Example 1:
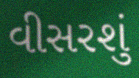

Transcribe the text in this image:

વીસરશું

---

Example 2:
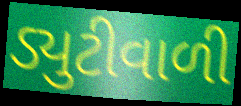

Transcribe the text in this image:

ડ્યુટીવાળી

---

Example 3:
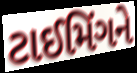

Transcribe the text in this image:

ટાઈમિંગને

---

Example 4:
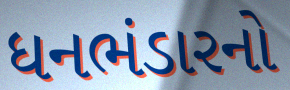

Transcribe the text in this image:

ધનભંડારનો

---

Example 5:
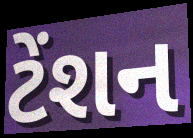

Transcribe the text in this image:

ટેંશન